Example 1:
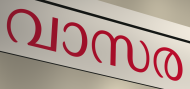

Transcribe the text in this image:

വാസര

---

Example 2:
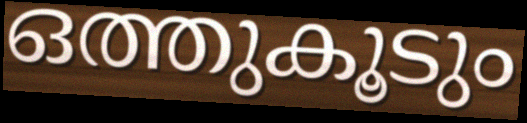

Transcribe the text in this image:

ഒത്തുകൂടും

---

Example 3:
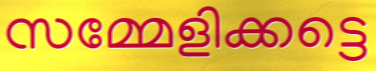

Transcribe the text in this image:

സമ്മേളിക്കട്ടെ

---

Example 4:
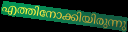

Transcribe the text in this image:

എത്തിനോക്കിയിരുന്നു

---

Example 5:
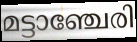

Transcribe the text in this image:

മട്ടാഞ്ചേരി